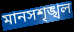
মানসশৃঙ্খল